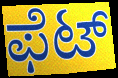
ಫೆಟ್